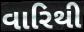
વારિથી